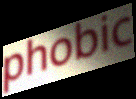
phobic